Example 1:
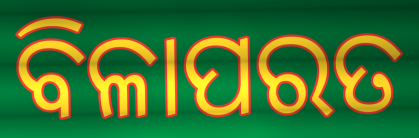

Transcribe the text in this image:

ବିଳାପରତ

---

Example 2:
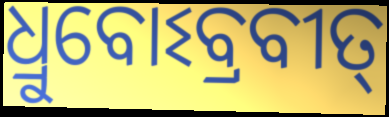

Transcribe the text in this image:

ଧ୍ରୁବୋଽବ୍ରବୀତ୍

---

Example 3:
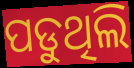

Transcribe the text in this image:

ପଡୁଥିଲି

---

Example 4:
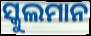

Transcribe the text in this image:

ସ୍କୁଲମାନ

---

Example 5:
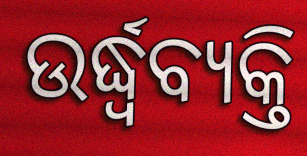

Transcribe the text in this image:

ଉର୍ଦ୍ଧ୍ୱବ୍ୟକ୍ତି